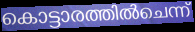
കൊട്ടാരത്തിൽചെന്ന്